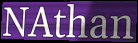
NAthan